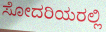
ಸೋದರಿಯರಲ್ಲಿ